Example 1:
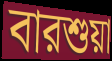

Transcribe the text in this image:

বারশুয়া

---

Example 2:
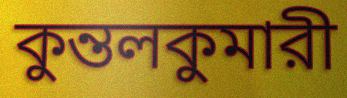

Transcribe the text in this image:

কুন্তলকুমারী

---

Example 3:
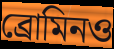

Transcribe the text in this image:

ব্রোমিনও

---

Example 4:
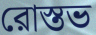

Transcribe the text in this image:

রোস্তভ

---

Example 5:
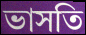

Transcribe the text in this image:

ভাসতি